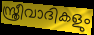
സ്ത്രീവാദികളും